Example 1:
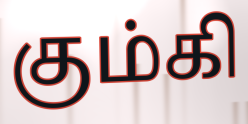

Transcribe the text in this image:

கும்கி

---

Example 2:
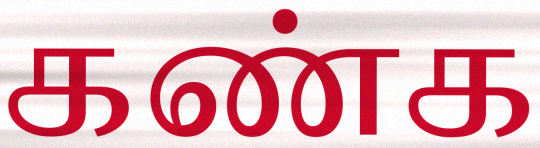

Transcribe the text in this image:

கண்க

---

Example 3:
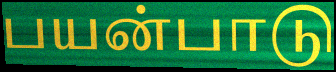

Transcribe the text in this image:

பயன்பாடு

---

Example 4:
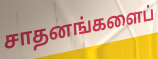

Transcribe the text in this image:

சாதனங்களைப்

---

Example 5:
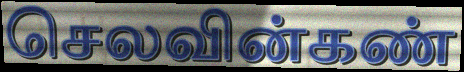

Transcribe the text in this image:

செலவின்கண்